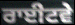
ਰਾਈਟਵੇ